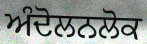
ਅੰਦੋਲਨਲੋਕ